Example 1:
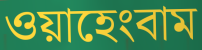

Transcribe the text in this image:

ওয়াহেংবাম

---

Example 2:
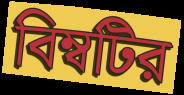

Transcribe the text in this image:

বিম্বটির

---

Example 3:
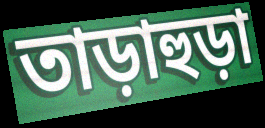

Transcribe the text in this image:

তাড়াহুড়া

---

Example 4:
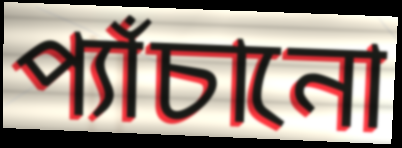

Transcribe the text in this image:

প্যাঁচানো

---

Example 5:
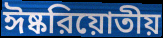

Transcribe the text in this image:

ঈষ্করিয়োতীয়